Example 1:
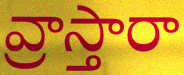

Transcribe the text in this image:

వ్రాస్తారా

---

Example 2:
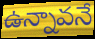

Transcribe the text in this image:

ఉన్నావనే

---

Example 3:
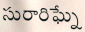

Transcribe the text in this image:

సురారిఘ్నే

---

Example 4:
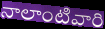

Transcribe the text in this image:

నాలాంటివారి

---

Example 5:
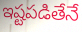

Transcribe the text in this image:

ఇష్టపడితేనే